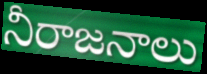
నీరాజనాలు